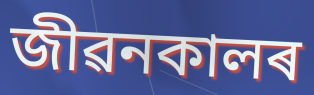
জীৱনকালৰ